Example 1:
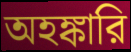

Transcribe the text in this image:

অহঙ্কারি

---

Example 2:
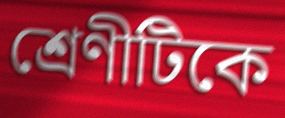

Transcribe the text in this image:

শ্রেণীটিকে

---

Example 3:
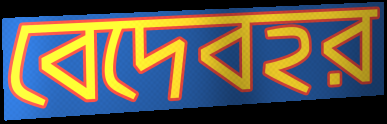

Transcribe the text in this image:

বেদেবহর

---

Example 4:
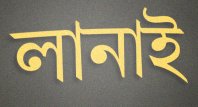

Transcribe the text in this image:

লানাই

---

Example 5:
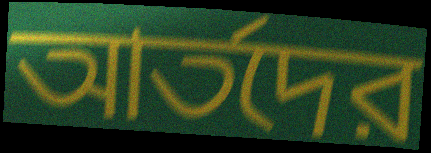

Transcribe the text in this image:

আর্তদের